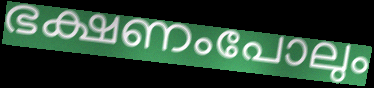
ഭക്ഷണംപോലും